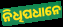
ନିଧିପଧାନେ